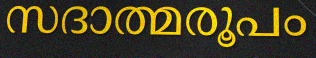
സദാത്മരൂപം